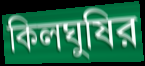
কিলঘুষির